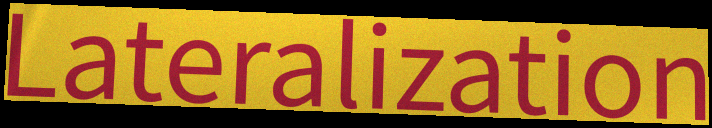
Lateralization